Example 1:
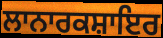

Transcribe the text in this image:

ਲਾਨਾਰਕਸ਼ਾਇਰ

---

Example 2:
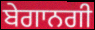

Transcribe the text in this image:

ਬੇਗਾਨਗੀ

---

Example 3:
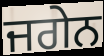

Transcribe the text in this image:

ਜਗੇਨ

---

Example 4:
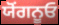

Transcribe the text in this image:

ਯੋਂਗਨੂਓ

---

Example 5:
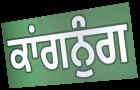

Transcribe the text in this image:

ਕਾਂਗਨੁੰਗ